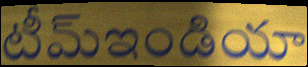
టీమ్ఇండియా